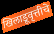
खिलाडूवृत्तीचे